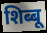
शिब्बू